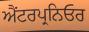
ਐਂਟਰਪ੍ਰਨਿਓਰ